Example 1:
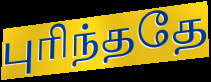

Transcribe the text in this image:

புரிந்ததே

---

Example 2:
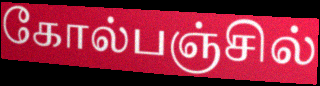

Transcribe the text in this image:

கோல்பஞ்சில்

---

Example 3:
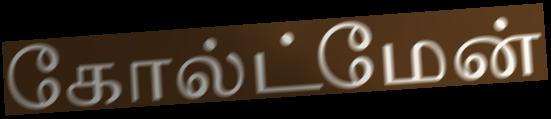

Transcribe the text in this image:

கோல்ட்மேன்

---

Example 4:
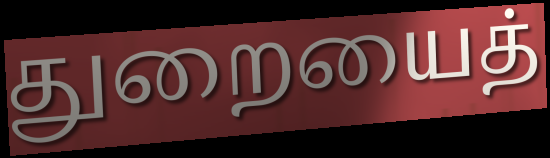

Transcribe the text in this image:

துறையைத்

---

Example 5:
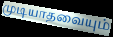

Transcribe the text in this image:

முடியாதவையும்